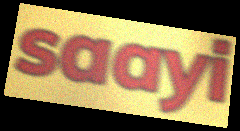
saayi